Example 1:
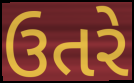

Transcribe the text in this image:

ઉતરે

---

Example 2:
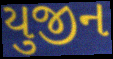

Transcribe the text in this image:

યુજીન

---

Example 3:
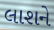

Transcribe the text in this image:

લાશને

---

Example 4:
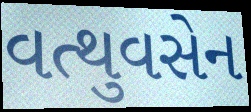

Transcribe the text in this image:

વત્થુવસેન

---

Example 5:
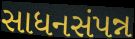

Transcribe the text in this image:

સાધનસંપન્ન